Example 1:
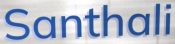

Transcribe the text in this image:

Santhali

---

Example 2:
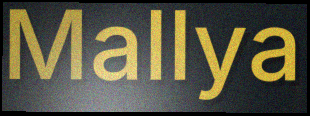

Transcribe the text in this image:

Mallya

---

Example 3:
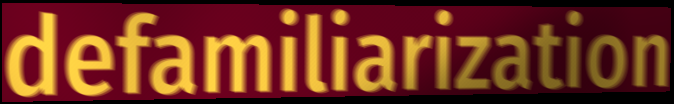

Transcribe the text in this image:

defamiliarization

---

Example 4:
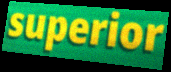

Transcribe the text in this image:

superior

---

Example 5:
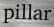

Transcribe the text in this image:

pillar